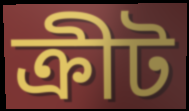
ক্রীট